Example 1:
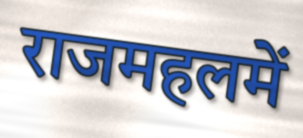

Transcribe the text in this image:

राजमहलमें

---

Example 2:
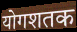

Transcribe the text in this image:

योगशतक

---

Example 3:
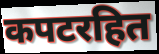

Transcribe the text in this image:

कपटरहित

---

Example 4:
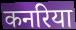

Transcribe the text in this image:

कनरिया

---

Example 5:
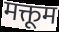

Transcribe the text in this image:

मक्तूम